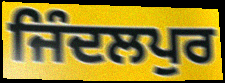
ਜਿੰਦਲਪੁਰ